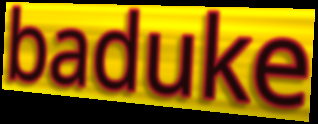
baduke